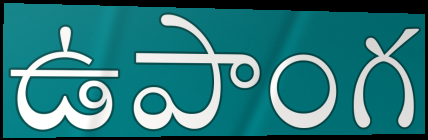
ఉపాంగ